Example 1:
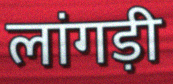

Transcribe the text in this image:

लांगड़ी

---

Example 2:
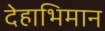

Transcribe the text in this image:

देहाभिमान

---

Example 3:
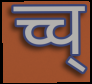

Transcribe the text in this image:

च्च्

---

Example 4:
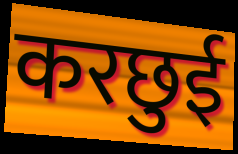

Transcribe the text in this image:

करछुई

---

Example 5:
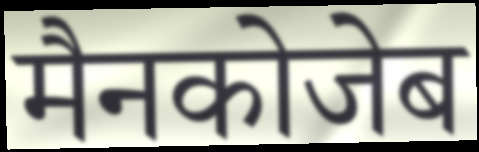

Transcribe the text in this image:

मैनकोजेब